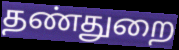
தண்துறை